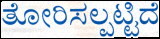
ತೋರಿಸಲ್ಪಟ್ಟಿದೆ